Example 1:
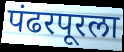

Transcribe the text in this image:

पंढरपूरला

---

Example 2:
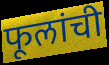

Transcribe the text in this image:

फूलांची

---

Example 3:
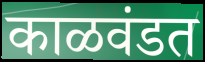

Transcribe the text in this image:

काळवंडत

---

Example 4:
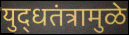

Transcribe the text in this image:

युद्धतंत्रामुळे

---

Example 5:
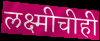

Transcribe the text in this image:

लक्ष्मीचीही